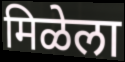
मिळेला